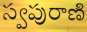
స్వపురాణి